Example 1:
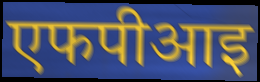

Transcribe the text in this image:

एफपीआइ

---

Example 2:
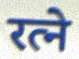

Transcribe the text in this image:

रत्ने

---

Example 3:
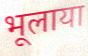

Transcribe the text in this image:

भूलाया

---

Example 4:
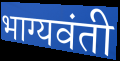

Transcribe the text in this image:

भाग्यवंती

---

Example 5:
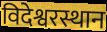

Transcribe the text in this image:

विदेश्वरस्थान